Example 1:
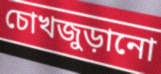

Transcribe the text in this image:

চোখজুড়ানো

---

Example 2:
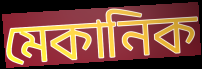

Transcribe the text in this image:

মেকানিক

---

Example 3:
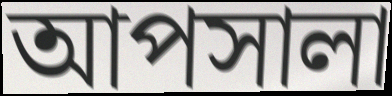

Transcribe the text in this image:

আপসালা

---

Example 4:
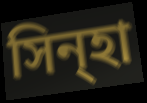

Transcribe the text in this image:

সিন্হা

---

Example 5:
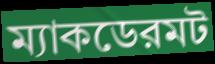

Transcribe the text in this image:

ম্যাকডেরমট